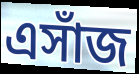
এসাঁজ